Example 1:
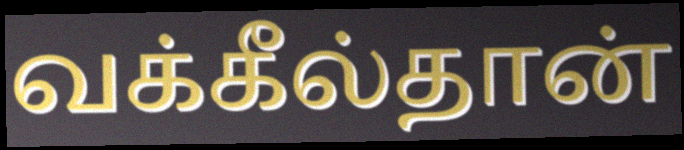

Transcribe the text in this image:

வக்கீல்தான்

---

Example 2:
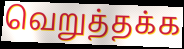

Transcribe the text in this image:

வெறுத்தக்க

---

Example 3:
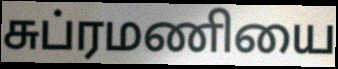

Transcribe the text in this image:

சுப்ரமணியை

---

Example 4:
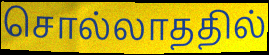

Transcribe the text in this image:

சொல்லாததில்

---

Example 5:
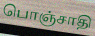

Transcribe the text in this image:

பொஞ்சாதி